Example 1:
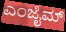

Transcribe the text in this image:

ಎಂಜೈಮ್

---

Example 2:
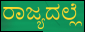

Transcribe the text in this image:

ರಾಜ್ಯದಲ್ಲೆ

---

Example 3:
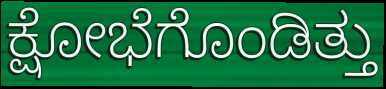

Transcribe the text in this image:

ಕ್ಷೋಭೆಗೊಂಡಿತ್ತು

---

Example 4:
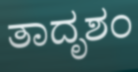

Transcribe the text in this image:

ತಾದೃಶಂ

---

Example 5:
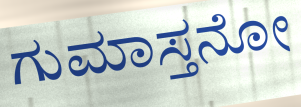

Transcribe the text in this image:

ಗುಮಾಸ್ತನೋ